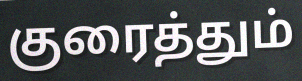
குரைத்தும்